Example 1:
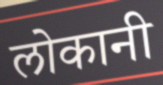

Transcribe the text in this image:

लोकानी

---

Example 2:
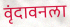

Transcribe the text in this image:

वृंदावनला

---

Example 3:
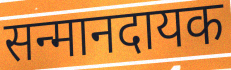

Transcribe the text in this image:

सन्मानदायक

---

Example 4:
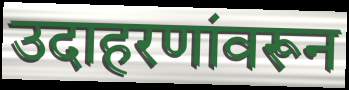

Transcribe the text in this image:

उदाहरणांवरून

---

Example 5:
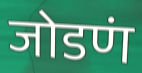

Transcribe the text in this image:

जोडणं